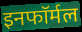
इनफॉर्मल